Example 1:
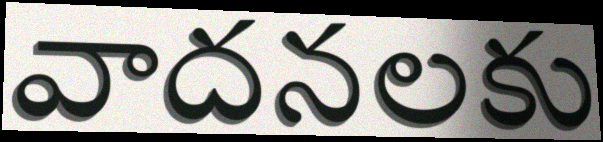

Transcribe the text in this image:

వాదనలకు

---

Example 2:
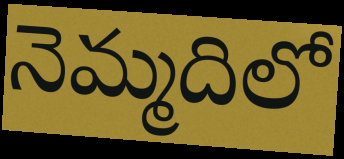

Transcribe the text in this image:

నెమ్మదిలో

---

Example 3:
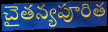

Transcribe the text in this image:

చైతన్యపూరిత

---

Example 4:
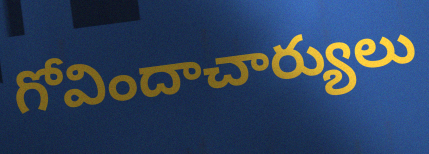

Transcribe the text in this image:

గోవిందాచార్యులు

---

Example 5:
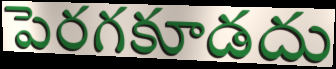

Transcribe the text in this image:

పెరగకూడదు